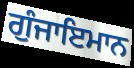
ਗੁੰਜਾਇਮਾਨ